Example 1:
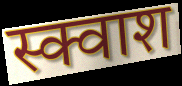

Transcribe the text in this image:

स्क्वाश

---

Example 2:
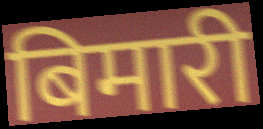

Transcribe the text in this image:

बिमारी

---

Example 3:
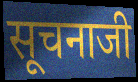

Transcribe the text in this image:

सूचनाजी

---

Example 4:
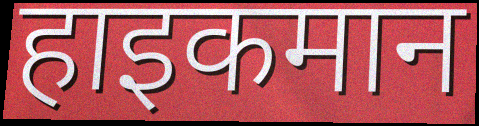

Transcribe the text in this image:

हाइकमान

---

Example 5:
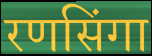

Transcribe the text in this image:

रणसिंगा